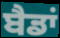
ਬੈਡਾਂ